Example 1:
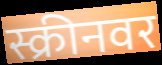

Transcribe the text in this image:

स्क्रीनवर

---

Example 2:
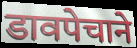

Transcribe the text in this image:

डावपेचाने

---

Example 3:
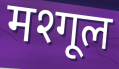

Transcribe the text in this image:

मश्गूल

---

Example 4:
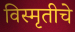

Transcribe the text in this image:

विस्मृतीचे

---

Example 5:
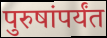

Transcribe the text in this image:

पुरुषांपर्यंत